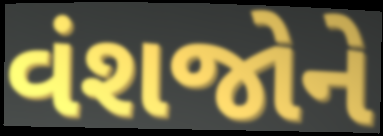
વંશજોને